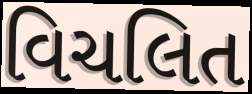
વિચલિત